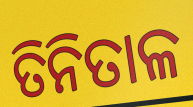
ତିନିତାଳ